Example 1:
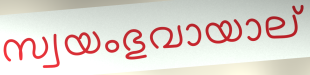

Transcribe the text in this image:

സ്വയംഭുവായാല്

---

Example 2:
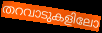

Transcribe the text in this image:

തറവാടുകളിലോ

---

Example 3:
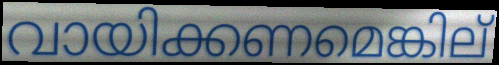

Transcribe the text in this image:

വായിക്കണമെങ്കില്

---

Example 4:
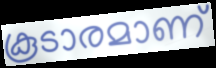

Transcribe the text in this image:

കൂടാരമാണ്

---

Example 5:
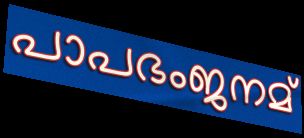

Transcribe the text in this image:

പാപഭംജനമ്